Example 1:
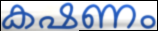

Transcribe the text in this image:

കഷണം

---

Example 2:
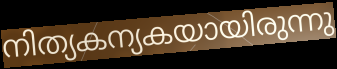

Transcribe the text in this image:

നിത്യകന്യകയായിരുന്നു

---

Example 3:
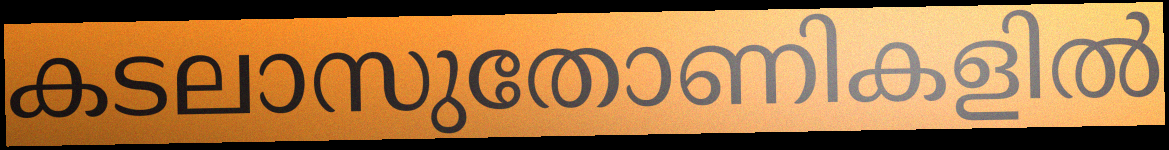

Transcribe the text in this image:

കടലാസുതോണികളിൽ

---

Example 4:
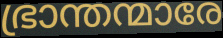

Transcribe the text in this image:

ഭ്രാന്തന്മാരേ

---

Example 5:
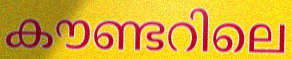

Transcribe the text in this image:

കൗണ്ടറിലെ